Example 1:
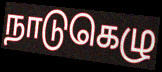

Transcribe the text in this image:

நாடுகெழு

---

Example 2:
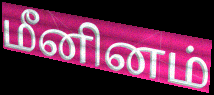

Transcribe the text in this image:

மீனினம்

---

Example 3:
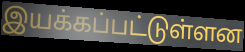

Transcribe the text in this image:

இயக்கப்பட்டுள்ளன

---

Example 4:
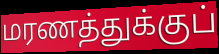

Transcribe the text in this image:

மரணத்துக்குப்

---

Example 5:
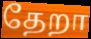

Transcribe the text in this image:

தேறா